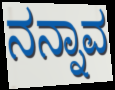
ನನ್ನಾವ